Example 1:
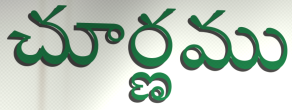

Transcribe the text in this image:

చూర్ణము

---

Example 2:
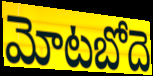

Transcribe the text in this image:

మోటబోదె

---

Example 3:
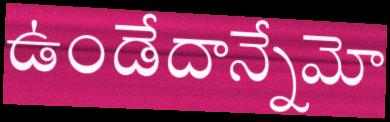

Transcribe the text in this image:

ఉండేదాన్నేమో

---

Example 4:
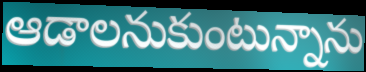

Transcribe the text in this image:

ఆడాలనుకుంటున్నాను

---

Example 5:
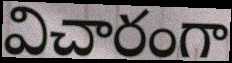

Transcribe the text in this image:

విచారంగా